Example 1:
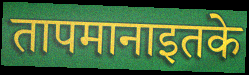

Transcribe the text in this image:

तापमानाइतके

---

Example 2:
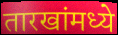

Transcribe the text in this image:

तारखांमध्ये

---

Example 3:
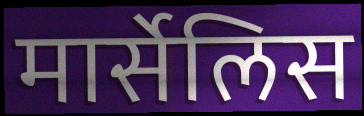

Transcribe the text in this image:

मार्सेलिस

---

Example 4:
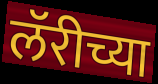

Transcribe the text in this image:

लॅरीच्या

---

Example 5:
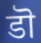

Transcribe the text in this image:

डॊ